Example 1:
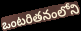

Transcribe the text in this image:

ఒంటరితనంలోని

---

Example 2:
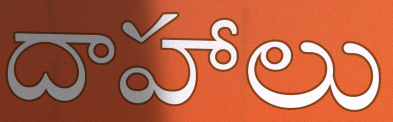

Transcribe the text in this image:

దాహాలు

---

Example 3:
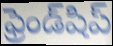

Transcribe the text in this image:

ఫ్రెండ్‌షిప్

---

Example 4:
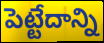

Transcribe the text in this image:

పెట్టేదాన్ని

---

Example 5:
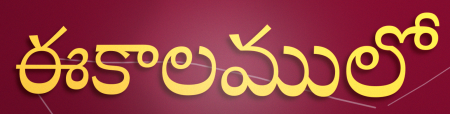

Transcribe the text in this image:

ఈకాలములో